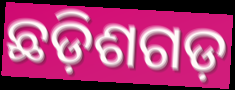
ଛଡ଼ିଶଗଡ଼